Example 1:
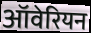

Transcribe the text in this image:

ऑवेरियन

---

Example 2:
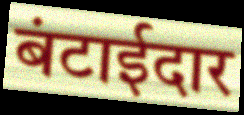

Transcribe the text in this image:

बंटाईदार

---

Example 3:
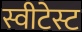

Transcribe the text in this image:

स्वीटेस्ट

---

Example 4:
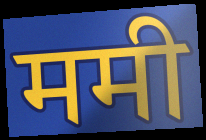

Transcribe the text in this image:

ममी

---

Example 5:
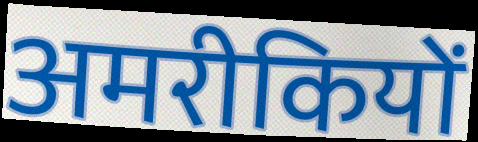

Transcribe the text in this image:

अमरीकियों